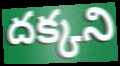
దక్కని